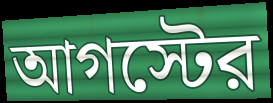
আগস্টের